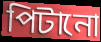
পিটানো